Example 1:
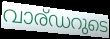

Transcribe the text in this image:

വാര്ഡറുടെ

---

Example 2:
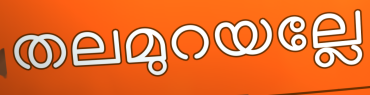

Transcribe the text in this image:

തലമുറയല്ലേ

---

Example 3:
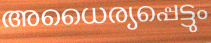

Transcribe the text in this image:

അധൈര്യപ്പെട്ടും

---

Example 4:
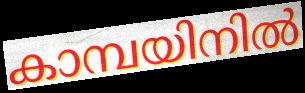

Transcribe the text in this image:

കാമ്പയിനിൽ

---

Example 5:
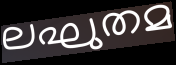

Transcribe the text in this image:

ലഘുതമ